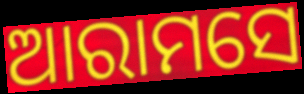
ଆରାମସେ